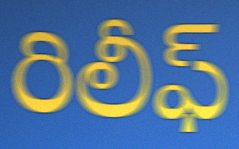
రిలీఫ్